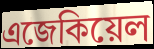
এজেকিয়েল